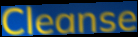
Cleanse